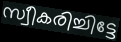
സ്വീകരിച്ചിട്ടേ